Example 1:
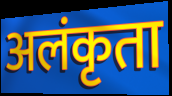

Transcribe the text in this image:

अलंकृता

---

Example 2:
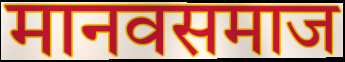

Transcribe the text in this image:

मानवसमाज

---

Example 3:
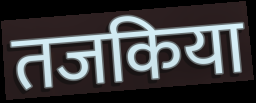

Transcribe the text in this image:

तजकिया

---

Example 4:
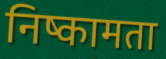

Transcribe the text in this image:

निष्कामता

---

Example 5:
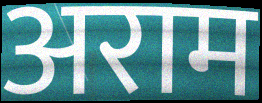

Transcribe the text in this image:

अराम